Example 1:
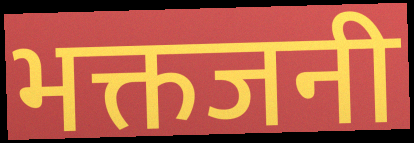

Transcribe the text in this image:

भक्तजनी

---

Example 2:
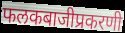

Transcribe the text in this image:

फलकबाजीप्रकरणी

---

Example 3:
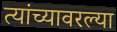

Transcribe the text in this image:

त्यांच्यावरल्या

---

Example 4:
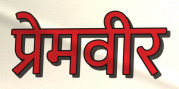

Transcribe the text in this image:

प्रेमवीर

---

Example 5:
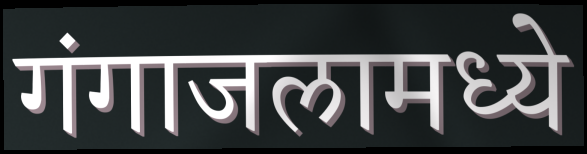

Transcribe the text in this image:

गंगाजलामध्ये